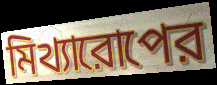
মিথ্যারোপের